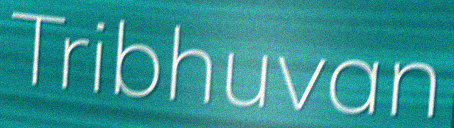
Tribhuvan